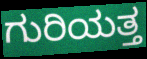
ಗುರಿಯತ್ತ